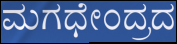
ಮಗಧೇಂದ್ರದ